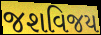
જશવિજય